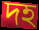
দহ